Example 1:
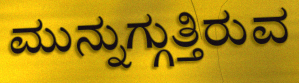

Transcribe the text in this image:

ಮುನ್ನುಗ್ಗುತ್ತಿರುವ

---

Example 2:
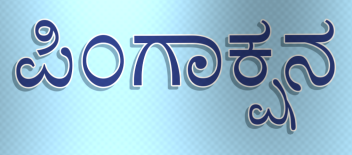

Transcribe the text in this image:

ಪಿಂಗಾಕ್ಷನ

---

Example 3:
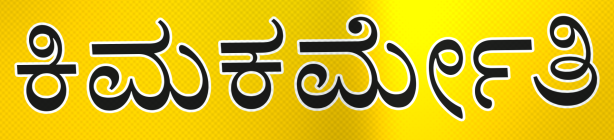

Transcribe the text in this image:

ಕಿಮಕರ್ಮೇತಿ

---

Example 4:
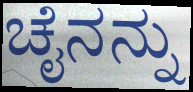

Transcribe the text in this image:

ಚೈನನ್ನು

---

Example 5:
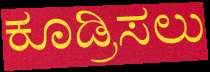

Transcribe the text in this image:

ಕೂಡ್ರಿಸಲು